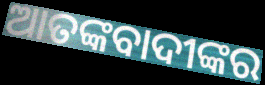
ଆତଙ୍କବାଦୀଙ୍କର